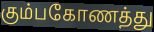
கும்பகோணத்து